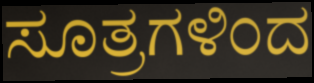
ಸೂತ್ರಗಳಿಂದ